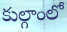
కుల్గాంలో